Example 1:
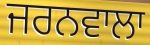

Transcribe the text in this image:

ਜਰਨਵਾਲਾ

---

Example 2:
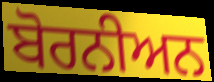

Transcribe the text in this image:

ਬੋਰਨੀਅਨ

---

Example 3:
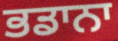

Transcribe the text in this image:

ਭਡਾਨਾ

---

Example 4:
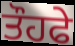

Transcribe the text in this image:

ਤੌਹਫੇ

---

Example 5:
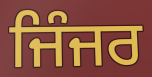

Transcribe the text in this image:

ਜਿੰਜਰ